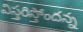
విస్తరిస్తోందన్న